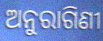
ଅନୁରାଗିଣୀ